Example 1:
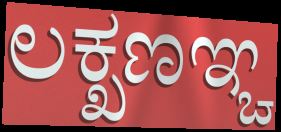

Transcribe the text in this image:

ಲಕ್ಖಣಞ್ಚ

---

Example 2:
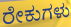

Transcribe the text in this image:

ರೇಕುಗಳು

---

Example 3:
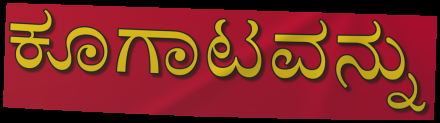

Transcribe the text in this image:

ಕೂಗಾಟವನ್ನು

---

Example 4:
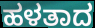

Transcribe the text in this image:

ಹಳತಾದ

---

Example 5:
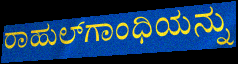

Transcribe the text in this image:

ರಾಹುಲ್‌ಗಾಂಧಿಯನ್ನು